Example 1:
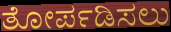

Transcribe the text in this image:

ತೋರ್ಪಡಿಸಲು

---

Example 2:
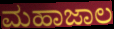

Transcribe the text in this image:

ಮಹಾಜಾಲ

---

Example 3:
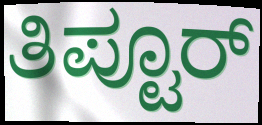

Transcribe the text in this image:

ತಿಪ್ಟೂರ್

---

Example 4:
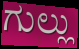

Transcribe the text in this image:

ಗುಲ್ಲು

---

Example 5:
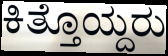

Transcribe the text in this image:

ಕಿತ್ತೊಯ್ದರು